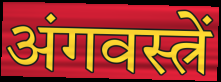
अंगवस्त्रें